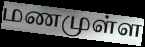
மணமுள்ள